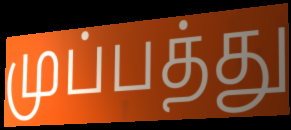
முப்பத்து